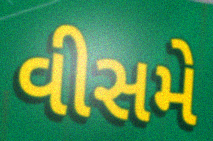
વીસમે